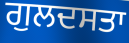
ਗੁਲਦਸਤਾ